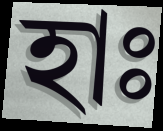
হাঃ